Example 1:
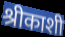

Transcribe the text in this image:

श्रीकाशी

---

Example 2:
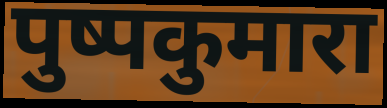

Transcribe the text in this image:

पुष्पकुमारा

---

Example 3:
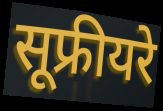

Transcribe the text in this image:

सूफ्रीयरे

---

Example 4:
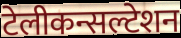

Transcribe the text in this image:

टेलीकन्सल्टेशन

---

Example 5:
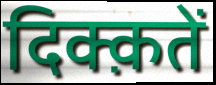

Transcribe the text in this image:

दिक्क़तें